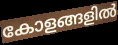
കോളങ്ങളിൽ